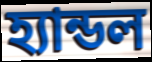
হ্যান্ডল